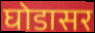
घोडासर